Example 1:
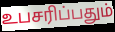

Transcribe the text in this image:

உபசரிப்பதும்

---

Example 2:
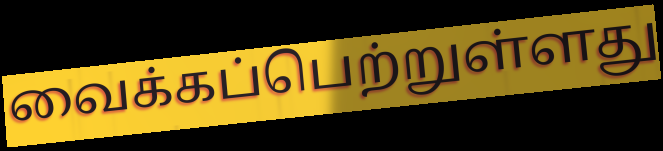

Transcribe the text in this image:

வைக்கப்பெற்றுள்ளது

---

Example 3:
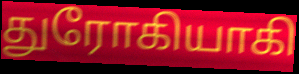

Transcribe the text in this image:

துரோகியாகி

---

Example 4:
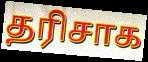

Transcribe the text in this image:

தரிசாக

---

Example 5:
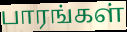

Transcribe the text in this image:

பாரங்கள்